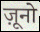
ज़ूनो